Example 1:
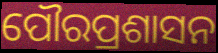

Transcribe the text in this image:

ପୌରପ୍ରଶାସନ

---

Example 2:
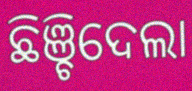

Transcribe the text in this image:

ଛିଞ୍ଚିଦେଲା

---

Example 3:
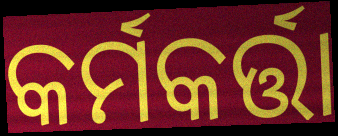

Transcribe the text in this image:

କର୍ମକର୍ତ୍ତା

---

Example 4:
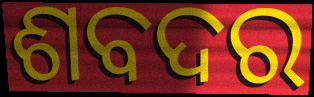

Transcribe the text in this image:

ଶବଦର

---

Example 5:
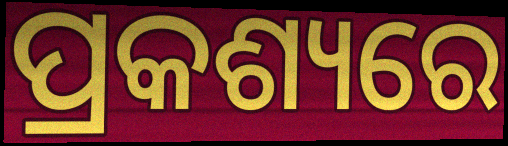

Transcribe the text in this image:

ପ୍ରକଶ୍ୟରେ